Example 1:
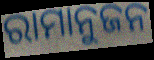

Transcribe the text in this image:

ରାମାନୁଜନ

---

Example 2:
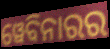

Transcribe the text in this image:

ୱେବିନାରର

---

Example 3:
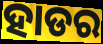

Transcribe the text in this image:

ହାଡର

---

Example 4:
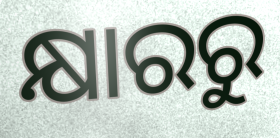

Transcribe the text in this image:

କ୍ଷାରରୁ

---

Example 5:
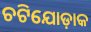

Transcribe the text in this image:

ଚଟିଯୋଡ଼ାକ